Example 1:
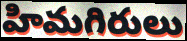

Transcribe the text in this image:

హిమగిరులు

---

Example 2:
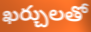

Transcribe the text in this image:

ఖర్చులతో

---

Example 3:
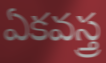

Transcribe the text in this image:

ఏకవస్త్ర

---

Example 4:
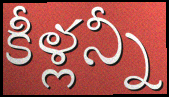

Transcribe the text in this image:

కీళ్లన్నీ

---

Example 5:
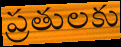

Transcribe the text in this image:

ప్రతులకు